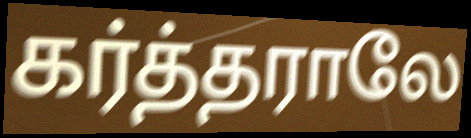
கர்த்தராலே